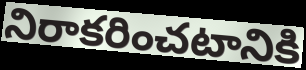
నిరాకరించటానికి